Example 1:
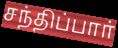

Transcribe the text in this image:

சந்திப்பார்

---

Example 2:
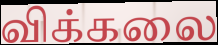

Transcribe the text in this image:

விக்கலை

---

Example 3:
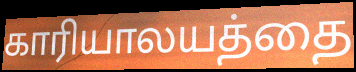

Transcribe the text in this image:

காரியாலயத்தை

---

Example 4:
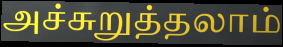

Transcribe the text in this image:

அச்சுறுத்தலாம்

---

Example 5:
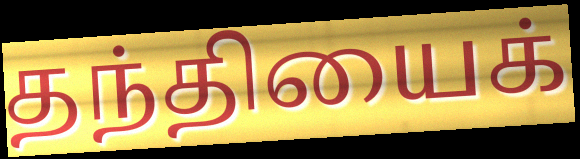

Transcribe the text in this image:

தந்தியைக்